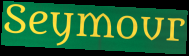
Seymour